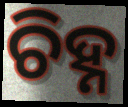
ଚିହ୍ନ